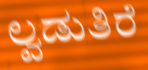
ಲ್ವಡುತಿರೆ